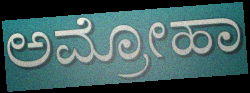
ಅಮ್ರೋಹಾ